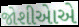
જોશીએાએ